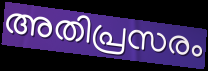
അതിപ്രസരം